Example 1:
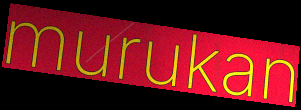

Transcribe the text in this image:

murukan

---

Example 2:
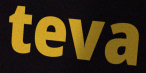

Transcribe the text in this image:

teva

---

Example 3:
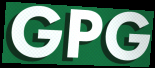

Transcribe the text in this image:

GPG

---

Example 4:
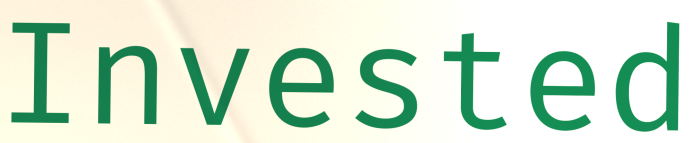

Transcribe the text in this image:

Invested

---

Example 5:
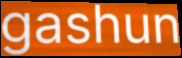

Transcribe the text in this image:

gashun